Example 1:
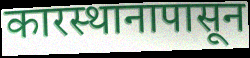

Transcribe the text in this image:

कारस्थानापासून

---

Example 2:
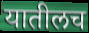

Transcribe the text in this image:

यातीलच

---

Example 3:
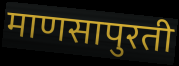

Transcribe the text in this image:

माणसापुरती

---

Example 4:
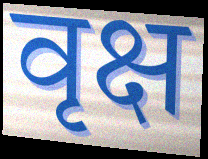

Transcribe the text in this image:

वृक्ष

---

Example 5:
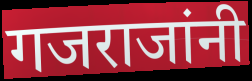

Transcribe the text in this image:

गजराजांनी